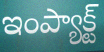
ఇంప్యాక్ట్